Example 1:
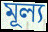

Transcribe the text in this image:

মূল্য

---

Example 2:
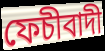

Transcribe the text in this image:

ফেচীবাদী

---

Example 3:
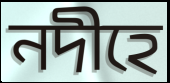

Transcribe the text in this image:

নদীহে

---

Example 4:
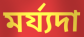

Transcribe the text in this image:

মৰ্য্যদা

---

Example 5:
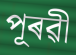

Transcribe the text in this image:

পূৰৱী